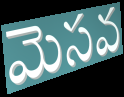
మెసవ